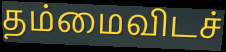
தம்மைவிடச்